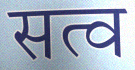
सत्व